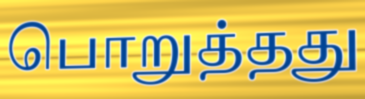
பொறுத்தது